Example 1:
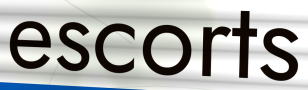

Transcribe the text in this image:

escorts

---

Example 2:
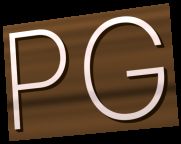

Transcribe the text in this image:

PG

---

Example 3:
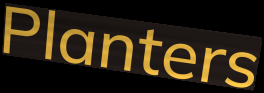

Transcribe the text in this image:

Planters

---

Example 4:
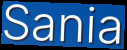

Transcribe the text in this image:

Sania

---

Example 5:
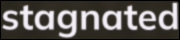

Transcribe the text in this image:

stagnated